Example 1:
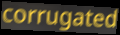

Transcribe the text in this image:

corrugated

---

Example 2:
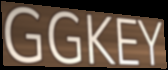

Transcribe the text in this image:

GGKEY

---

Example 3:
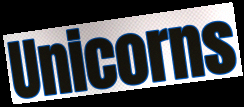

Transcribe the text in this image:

Unicorns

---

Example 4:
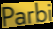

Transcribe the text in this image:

Parbi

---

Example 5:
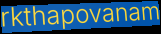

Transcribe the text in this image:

rkthapovanam